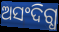
ଅସଂଦିଗ୍ଧ